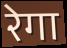
रेगा